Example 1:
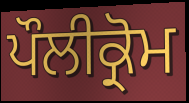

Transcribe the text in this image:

ਪੌਲੀਕ੍ਰੋਮ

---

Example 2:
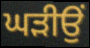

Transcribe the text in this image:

ਘੜੀਉਂ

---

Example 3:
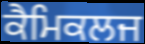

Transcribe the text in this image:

ਕੈਮਿਕਲਜ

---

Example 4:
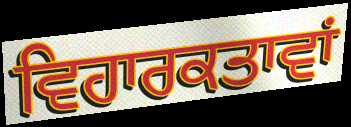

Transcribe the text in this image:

ਵਿਹਾਰਕਤਾਵਾਂ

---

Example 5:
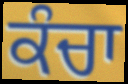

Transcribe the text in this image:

ਕੰਚਾ